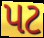
પટ